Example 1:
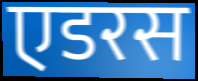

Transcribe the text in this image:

एडरस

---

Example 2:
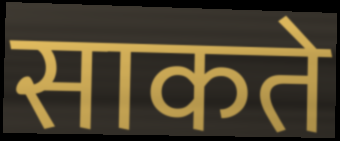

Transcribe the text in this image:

साकते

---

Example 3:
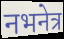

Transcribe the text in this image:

नभनेत्र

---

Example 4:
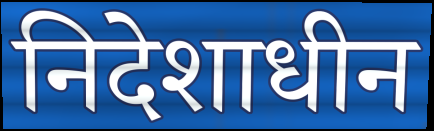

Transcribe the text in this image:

निदेशाधीन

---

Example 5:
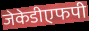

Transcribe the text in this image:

जेकेडीएफपी